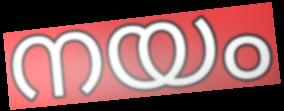
നയം